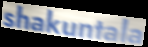
shakuntala